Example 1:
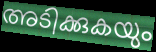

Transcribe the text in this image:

അടിക്കുകയും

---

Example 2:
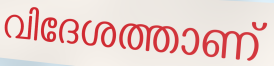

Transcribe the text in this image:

വിദേശത്താണ്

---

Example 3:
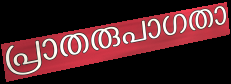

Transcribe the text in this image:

പ്രാതരുപാഗതാ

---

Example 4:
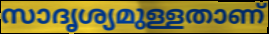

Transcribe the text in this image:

സാദൃശ്യമുള്ളതാണ്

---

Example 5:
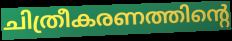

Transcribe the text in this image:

ചിത്രീകരണത്തിന്റെ